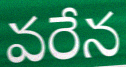
వరేన